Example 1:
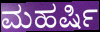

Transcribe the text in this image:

ಮಹರ್ಷಿ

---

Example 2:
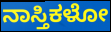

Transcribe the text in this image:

ನಾಸ್ತಿಕಳೋ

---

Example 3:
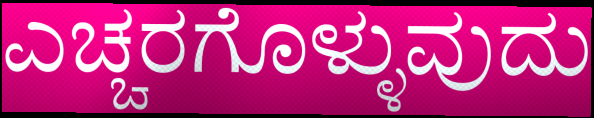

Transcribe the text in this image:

ಎಚ್ಚರಗೊಳ್ಳುವುದು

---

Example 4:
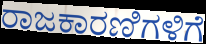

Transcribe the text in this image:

ರಾಜಕಾರಣಿಗಳಿಗೆ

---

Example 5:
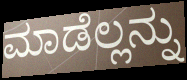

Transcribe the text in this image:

ಮಾಡೆಲ್ಲನ್ನು